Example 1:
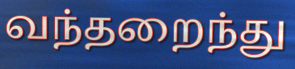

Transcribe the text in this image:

வந்தறைந்து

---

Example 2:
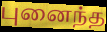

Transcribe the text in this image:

புனைந்த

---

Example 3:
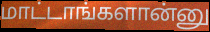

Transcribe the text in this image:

மாட்டாங்களான்னு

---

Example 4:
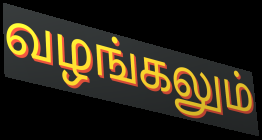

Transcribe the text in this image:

வழங்கலும்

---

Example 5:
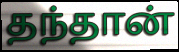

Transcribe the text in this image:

தந்தான்